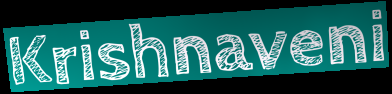
Krishnaveni